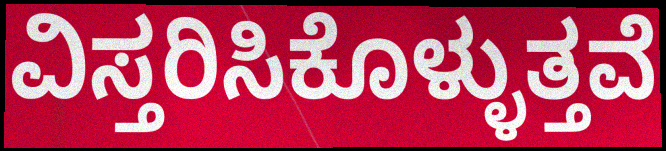
ವಿಸ್ತರಿಸಿಕೊಳ್ಳುತ್ತವೆ